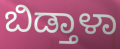
ಬಿಡ್ತಾಳಾ